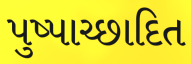
પુષ્પાચ્છાદિત